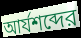
আর্যশব্দের